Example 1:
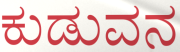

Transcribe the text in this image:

ಕುಡುವನ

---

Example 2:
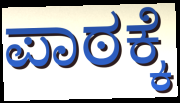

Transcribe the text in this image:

ಪಾಠಕ್ಕೆ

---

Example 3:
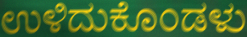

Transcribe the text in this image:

ಉಳಿದುಕೊಂಡಳು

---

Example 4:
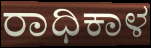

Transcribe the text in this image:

ರಾಧಿಕಾಳ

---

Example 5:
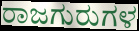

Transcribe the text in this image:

ರಾಜಗುರುಗಳ